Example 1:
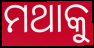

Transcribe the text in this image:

ମଥାକୁ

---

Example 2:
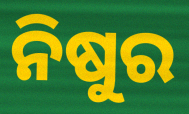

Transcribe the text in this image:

ନିଷୁର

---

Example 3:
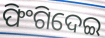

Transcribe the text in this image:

ଫିଂଗିଦେଇ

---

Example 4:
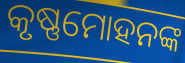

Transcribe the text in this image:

କୃଷ୍ଣମୋହନଙ୍କ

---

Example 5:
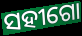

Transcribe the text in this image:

ସହୀଗୋ